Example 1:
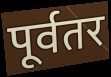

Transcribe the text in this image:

पूर्वतर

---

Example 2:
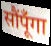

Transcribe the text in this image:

सौंपूँगा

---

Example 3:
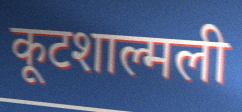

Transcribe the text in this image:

कूटशाल्मली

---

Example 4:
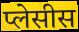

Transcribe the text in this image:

प्लेसीस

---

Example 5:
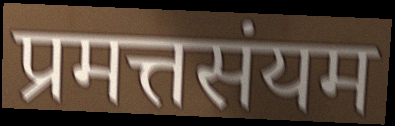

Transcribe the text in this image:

प्रमत्तसंयम